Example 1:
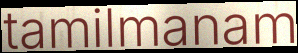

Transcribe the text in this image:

tamilmanam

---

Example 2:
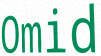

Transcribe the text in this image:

Omid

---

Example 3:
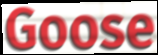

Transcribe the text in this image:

Goose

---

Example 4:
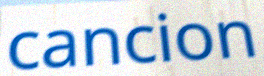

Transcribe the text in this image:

cancion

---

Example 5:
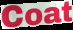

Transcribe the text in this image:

Coat